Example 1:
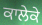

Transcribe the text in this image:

ਕਾਲੇਕੇ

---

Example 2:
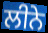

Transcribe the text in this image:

ਲੀਨੇ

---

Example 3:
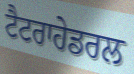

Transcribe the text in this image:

ਟੈਟਰਾਹੇਡਰਲ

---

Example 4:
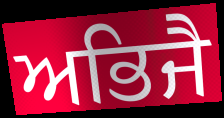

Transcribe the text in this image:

ਅਭਿਜੈ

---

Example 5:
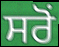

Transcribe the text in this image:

ਸਰੋਂ